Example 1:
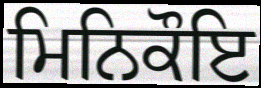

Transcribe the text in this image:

ਮਿਨਿਕੌਇ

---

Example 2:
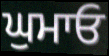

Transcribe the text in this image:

ਘੁਮਾਓ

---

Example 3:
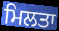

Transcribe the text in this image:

ਮਿਲਤਾ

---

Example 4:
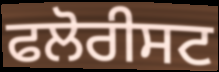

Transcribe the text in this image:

ਫਲੋਰੀਸਟ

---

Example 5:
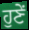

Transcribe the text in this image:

ਹੁਣੇਂ